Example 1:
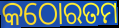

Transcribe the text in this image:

କଠୋରତମ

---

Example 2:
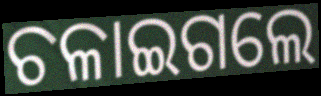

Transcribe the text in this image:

ଚଳାଇଗଲେ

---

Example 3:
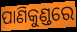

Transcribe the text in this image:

ପାଣିକୁଣ୍ଡରେ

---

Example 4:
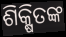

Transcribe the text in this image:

ଶିକ୍ଷିତଙ୍କ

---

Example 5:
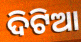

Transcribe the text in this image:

ଦିଟିଆ